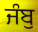
ਜੰਬੁ